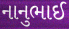
નાનુભાઈ